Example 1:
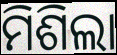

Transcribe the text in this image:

ମିଶିଲା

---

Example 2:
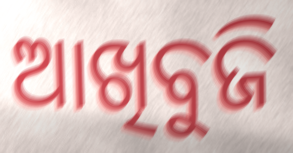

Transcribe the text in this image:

ଆଖିବୁଜି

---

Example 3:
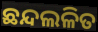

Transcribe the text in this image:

ଛନ୍ଦଲଳିତ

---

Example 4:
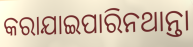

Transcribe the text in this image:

କରାଯାଇପାରିନଥାନ୍ତା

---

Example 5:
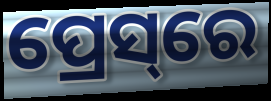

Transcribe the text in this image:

ପ୍ରେସ୍‌ରେ